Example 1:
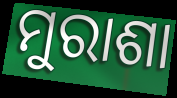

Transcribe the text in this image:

ମୁରାଶା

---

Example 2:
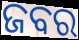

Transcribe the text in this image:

ଜବର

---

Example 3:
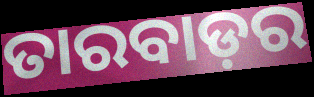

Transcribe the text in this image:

ତାରବାଡ଼ର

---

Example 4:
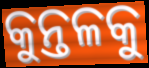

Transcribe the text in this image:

କୁନ୍ତଳକୁ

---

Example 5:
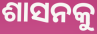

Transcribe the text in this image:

ଶାସନକୁ